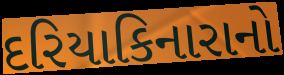
દરિયાકિનારાનો